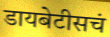
डायबेटीसचं